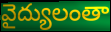
వైద్యులంతా